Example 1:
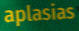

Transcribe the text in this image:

aplasias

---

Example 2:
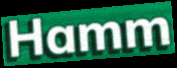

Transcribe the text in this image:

Hamm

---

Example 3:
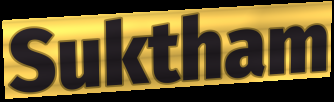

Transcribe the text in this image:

Suktham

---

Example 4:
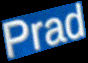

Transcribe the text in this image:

Prad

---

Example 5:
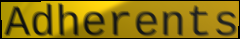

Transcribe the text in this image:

Adherents